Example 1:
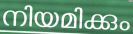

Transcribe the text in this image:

നിയമിക്കും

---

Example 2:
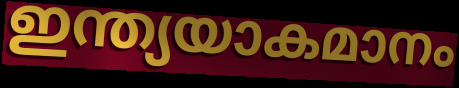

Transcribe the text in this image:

ഇന്ത്യയാകമാനം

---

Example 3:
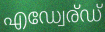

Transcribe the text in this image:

എഡ്വേര്ഡ്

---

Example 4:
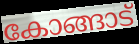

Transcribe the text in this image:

കോങ്ങാട്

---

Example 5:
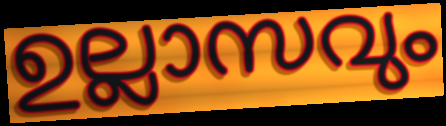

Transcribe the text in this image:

ഉല്ലാസവും